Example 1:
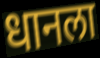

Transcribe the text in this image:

धानला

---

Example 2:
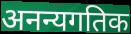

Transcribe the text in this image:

अनन्यगतिक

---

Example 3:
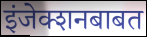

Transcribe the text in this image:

इंजेक्शनबाबत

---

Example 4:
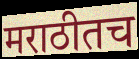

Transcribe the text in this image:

मराठीतच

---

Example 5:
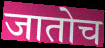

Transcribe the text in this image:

जातोच